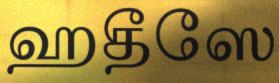
ஹதீஸே